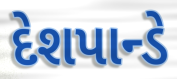
દેશપાન્ડે